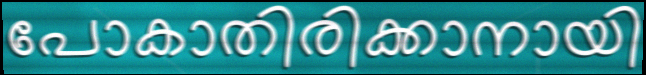
പോകാതിരിക്കാനായി